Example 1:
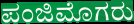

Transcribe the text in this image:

ಪಂಜಿಮೊಗರು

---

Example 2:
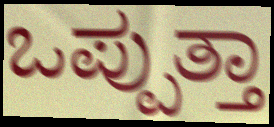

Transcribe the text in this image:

ಒಪ್ಪುತ್ತಾ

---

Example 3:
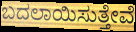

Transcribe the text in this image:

ಬದಲಾಯಿಸುತ್ತೇವೆ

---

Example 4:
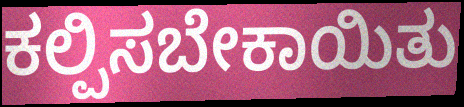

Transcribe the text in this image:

ಕಲ್ಪಿಸಬೇಕಾಯಿತು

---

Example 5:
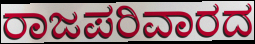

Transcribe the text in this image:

ರಾಜಪರಿವಾರದ